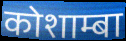
कोशाम्बा